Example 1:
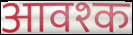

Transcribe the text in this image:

आवश्क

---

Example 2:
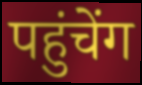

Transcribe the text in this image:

पहुंचेंग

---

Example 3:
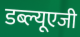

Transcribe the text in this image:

डब्ल्यूएजी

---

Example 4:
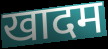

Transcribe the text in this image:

खादम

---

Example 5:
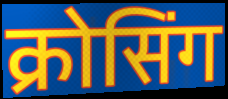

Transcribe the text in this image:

क्रोसिंग